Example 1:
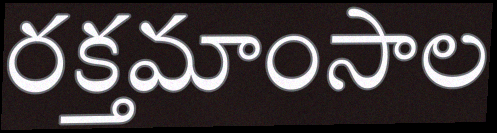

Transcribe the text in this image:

రక్తమాంసాల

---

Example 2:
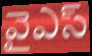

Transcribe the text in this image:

వైఎస్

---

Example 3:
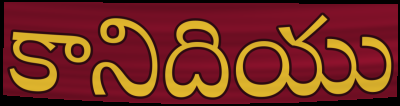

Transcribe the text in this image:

కానిదియు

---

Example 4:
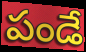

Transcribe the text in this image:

పండే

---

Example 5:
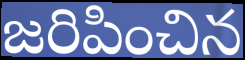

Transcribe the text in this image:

జరిపించిన